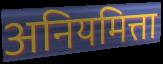
अनियमित्ता